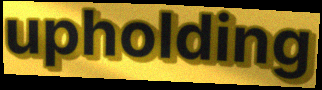
upholding